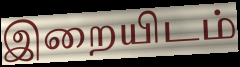
இறையிடம்